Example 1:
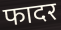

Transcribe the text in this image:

फादर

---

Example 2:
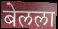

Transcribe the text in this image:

बेलला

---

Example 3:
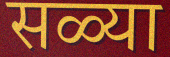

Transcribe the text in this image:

सळ्या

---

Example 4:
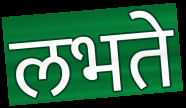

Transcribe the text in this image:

लभते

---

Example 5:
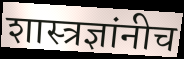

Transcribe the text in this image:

शास्त्रज्ञांनीच